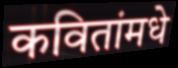
कवितांमधे